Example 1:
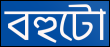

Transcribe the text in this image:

বহুটো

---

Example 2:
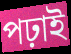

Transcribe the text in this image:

পঢ়াই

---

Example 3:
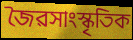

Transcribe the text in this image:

জৈৱসাংস্কৃতিক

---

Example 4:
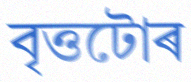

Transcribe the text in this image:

বৃত্তটোৰ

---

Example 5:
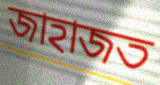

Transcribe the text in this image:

জাহাজত